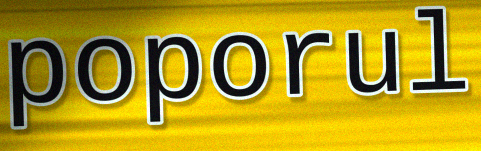
poporul